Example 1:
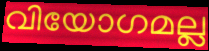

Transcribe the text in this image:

വിയോഗമല്ല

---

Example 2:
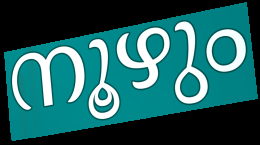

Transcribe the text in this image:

നൂഴും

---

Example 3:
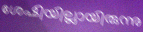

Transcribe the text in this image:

ശേഷിയില്ലായിരുന്നു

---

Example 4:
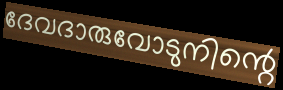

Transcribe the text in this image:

ദേവദാരുവോടുനിന്റെ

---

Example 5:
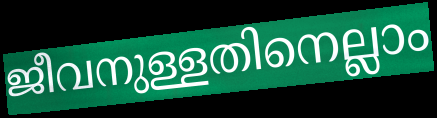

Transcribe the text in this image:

ജീവനുള്ളതിനെല്ലാം